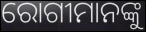
ରୋଗୀମାନଙ୍କୁ